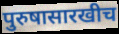
पुरुषासारखीच